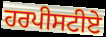
ਹਰਪੀਸਟੀਏ